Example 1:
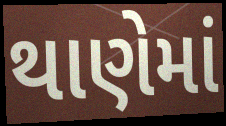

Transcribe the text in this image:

થાણેમાં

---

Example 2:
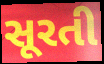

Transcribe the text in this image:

સૂરતી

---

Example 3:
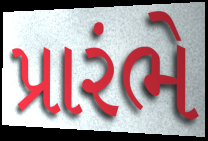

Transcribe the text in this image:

પ્રારંભે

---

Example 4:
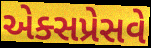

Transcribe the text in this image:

એક્સપ્રેસવે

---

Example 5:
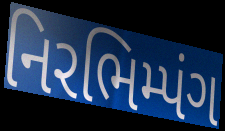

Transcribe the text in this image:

નિરભિમ્પંગ